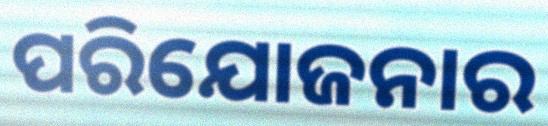
ପରିଯୋଜନାର